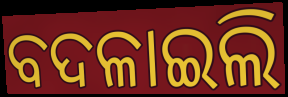
ବଦଳାଇଲି